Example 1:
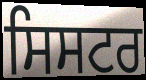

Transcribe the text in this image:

ਸਿਸਟਰ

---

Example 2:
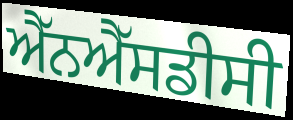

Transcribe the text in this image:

ਐੱਨਐੱਸਡੀਸੀ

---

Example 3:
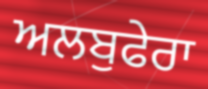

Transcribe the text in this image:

ਅਲਬੁਫੇਰਾ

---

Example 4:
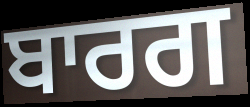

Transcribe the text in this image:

ਬਾਰਗ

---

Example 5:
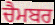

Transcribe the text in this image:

ਚੈਮਬਰ